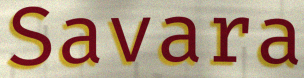
Savara